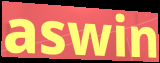
aswin